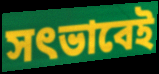
সৎভাবেই